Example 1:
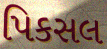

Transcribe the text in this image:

પિકસલ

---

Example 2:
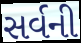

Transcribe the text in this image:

સર્વની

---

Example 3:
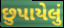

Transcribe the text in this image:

છુપાયેલું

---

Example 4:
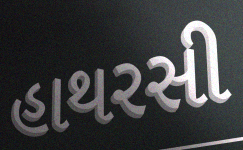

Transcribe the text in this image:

હાથરસી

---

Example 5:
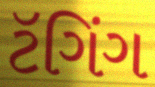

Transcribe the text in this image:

ટૅગિંગ